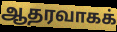
ஆதரவாகக்